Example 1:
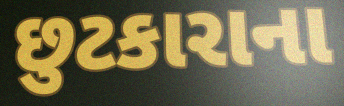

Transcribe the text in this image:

છુટકારાના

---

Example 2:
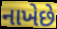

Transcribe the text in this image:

નાખેછે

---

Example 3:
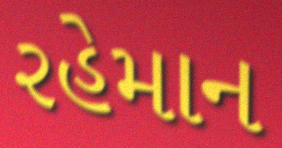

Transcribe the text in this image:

રહેમાન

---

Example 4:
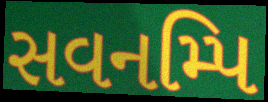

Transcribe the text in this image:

સવનમ્પિ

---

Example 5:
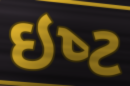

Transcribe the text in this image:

ઇષ્‍ટ